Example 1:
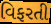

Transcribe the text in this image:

વિફરતી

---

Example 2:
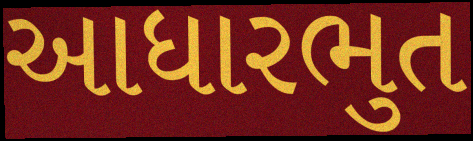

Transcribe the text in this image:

આધારભુત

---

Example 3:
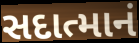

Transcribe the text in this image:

સદાત્માનં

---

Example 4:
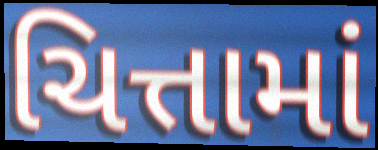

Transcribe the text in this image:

ચિત્તામાં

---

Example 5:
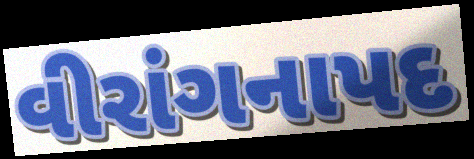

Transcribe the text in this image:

વીરાંગનાપદ